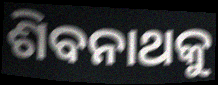
ଶିବନାଥକୁ